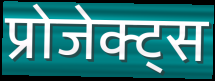
प्रोजेक्ट्स